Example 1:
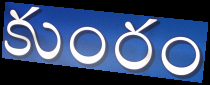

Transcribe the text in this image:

కుంరం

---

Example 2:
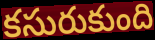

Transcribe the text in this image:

కసురుకుంది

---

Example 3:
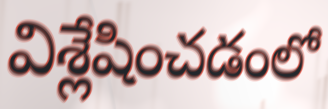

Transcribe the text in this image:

విశ్లేషించడంలో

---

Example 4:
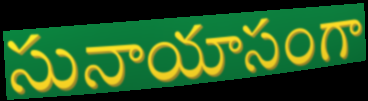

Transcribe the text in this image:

సునాయాసంగా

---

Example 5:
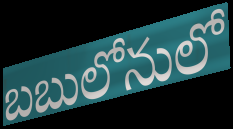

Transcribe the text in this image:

బబులోనులో